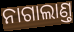
ନାଗାଲାଣ୍ତ